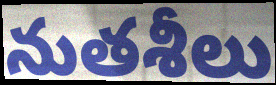
నుతశీలు